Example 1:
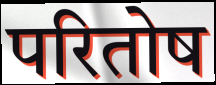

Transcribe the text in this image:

परितोष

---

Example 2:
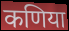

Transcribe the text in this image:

कणिया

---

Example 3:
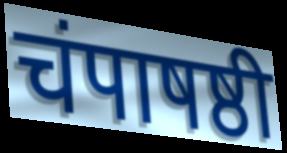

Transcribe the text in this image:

चंपाषष्ठी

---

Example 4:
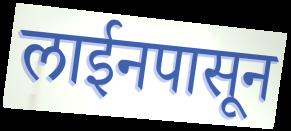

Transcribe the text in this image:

लाईनपासून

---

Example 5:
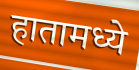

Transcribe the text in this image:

हातामध्ये